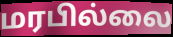
மரபில்லை